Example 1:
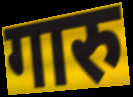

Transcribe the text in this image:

गारु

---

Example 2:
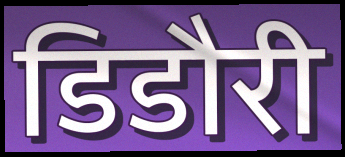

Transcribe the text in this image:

डिडौरी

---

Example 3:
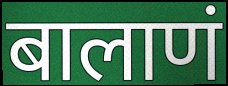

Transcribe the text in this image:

बालाणं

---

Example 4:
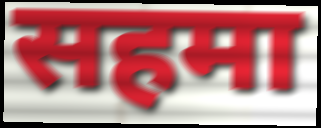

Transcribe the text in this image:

सहमा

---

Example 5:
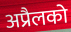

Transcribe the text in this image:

अप्रैलको